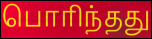
பொரிந்தது